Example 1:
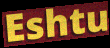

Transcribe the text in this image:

Eshtu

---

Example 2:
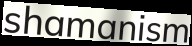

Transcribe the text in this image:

shamanism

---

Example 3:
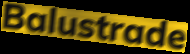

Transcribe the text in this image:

Balustrade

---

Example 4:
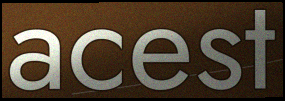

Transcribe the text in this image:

acest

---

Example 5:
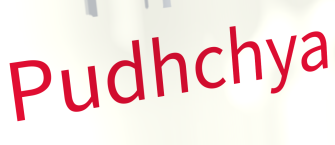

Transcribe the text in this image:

Pudhchya